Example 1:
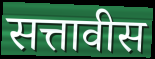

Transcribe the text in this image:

सत्तावीस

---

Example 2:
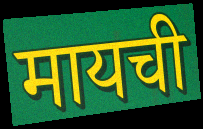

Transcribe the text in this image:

मायची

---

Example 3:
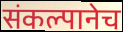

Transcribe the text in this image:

संकल्पानेच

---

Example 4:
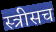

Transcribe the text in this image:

स्त्रीसच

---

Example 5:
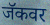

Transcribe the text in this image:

जॅकवर